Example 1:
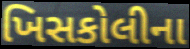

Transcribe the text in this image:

ખિસકોલીના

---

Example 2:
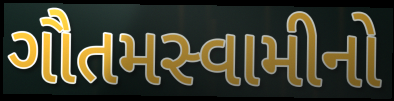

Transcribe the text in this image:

ગૌતમસ્વામીનો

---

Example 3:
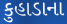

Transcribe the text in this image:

કુહાડાના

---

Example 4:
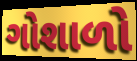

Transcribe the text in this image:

ગોશાળો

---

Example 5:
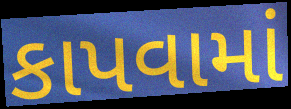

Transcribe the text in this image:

કાપવામાં